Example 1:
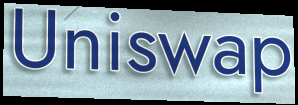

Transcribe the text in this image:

Uniswap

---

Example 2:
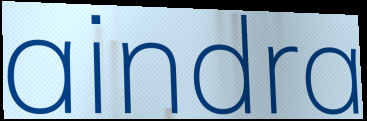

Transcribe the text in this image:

aindra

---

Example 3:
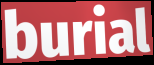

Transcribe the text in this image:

burial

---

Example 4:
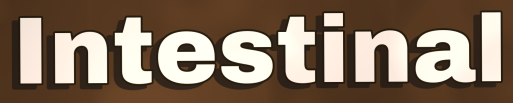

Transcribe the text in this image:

Intestinal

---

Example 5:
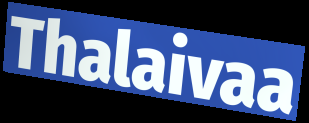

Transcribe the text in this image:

Thalaivaa